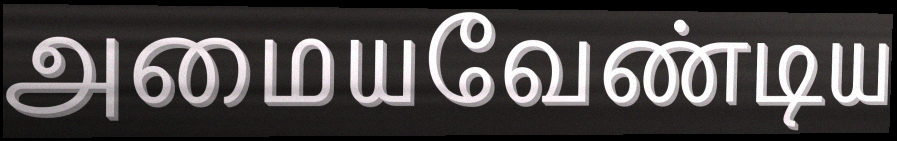
அமையவேண்டிய